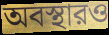
অবস্থারও